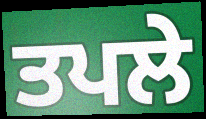
ਤਪਲੇ